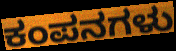
ಕಂಪನಗಳು